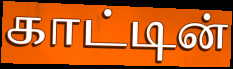
காட்டின்